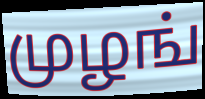
முழங்